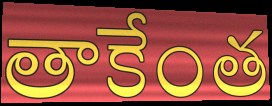
తాకేంత